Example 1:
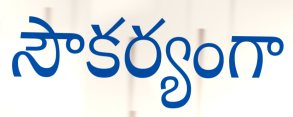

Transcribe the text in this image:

సౌకర్యంగా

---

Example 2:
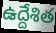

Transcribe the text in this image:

ఉద్దేశిత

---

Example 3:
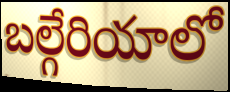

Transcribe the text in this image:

బల్గేరియాలో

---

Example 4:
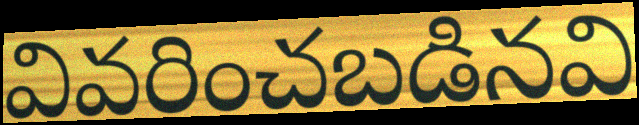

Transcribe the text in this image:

వివరించబడినవి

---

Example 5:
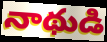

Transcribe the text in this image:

నాథుడి